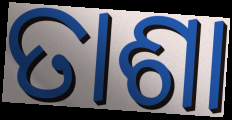
ତାଶା